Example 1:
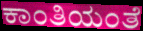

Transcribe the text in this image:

ಕಾಂತಿಯಂತೆ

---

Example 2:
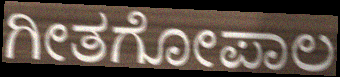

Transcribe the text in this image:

ಗೀತಗೋಪಾಲ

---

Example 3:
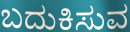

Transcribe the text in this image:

ಬದುಕಿಸುವ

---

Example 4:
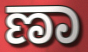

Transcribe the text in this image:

ಣಾ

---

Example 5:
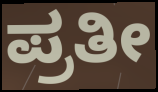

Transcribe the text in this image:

ಪ್ರತೀ